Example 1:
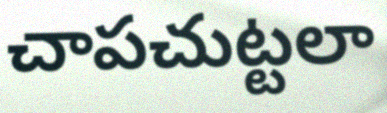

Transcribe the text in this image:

చాపచుట్టలా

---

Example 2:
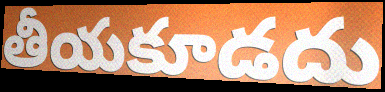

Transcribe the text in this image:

తీయకూడదు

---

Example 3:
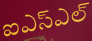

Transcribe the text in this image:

ఐఎస్ఎల్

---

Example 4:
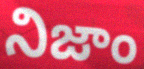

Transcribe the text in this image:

నిజాం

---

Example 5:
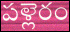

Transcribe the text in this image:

పళ్లెరం